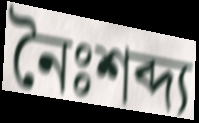
নৈঃশব্দ্য